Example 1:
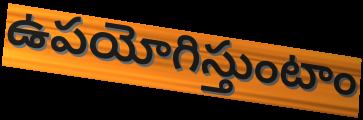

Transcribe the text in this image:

ఉపయోగిస్తుంటాం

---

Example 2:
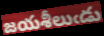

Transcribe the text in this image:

జయశీలుఁడు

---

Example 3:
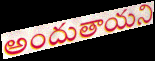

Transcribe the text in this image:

అందుతాయని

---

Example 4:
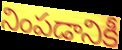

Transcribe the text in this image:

నింపడానికీ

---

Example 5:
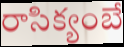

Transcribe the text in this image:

రాసిక్యంబే